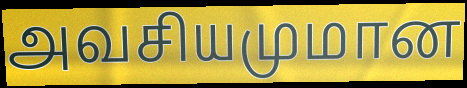
அவசியமுமான